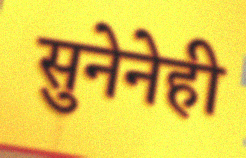
सुनेनेही